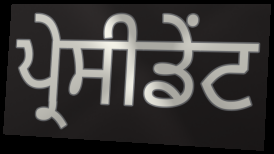
ਪ੍ਰੇਸੀਡੇਂਟ